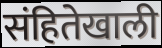
संहितेखाली